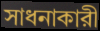
সাধনাকারী